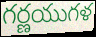
గర్ణయుగళ